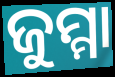
ଜୁମ୍ମା